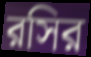
রসির